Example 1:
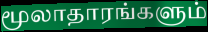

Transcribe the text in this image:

மூலாதாரங்களும்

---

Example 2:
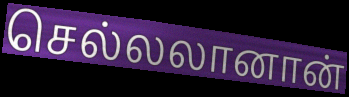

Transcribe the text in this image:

செல்லலானான்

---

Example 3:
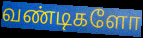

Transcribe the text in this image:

வண்டிகளோ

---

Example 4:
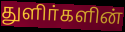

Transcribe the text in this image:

துளிர்களின்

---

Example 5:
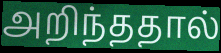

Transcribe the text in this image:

அறிந்ததால்